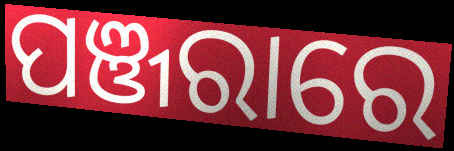
ପଞ୍ଜରାରେ